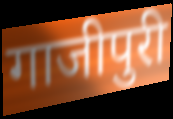
गाजीपुरी